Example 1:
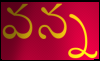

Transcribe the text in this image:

వన్న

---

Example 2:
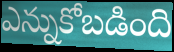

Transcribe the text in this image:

ఎన్నుకోబడింది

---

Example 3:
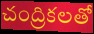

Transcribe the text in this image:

చంద్రికలతో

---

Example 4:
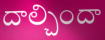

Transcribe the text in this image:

దాల్చిందా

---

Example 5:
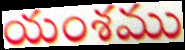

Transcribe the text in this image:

యంశము